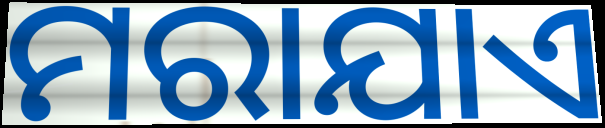
ମରାଯାଏ